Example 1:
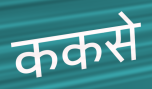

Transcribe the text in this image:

ककसे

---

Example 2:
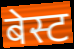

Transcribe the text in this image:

बेस्‍ट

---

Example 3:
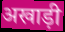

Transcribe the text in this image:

अखाड़ी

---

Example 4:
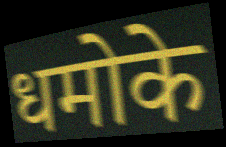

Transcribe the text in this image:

धमोके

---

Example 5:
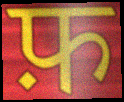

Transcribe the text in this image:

फ़